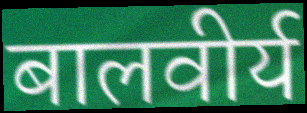
बालवीर्य